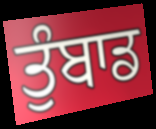
ਤੁੰਬਾਡ